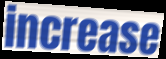
increase